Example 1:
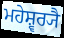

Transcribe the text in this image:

ਮਹੇਸ਼੍ਵਰ੍ਯੈ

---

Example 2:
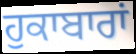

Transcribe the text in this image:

ਹੁਕਾਬਾਰਾਂ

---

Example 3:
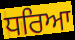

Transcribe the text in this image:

ਧਰਿਆ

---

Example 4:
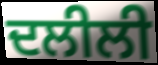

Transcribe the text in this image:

ਦਲੀਲੀ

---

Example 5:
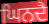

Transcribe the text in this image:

ਘਿਨਦੈ